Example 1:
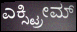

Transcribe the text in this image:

ಎಕ್ಸ್ಟ್ರೀಮ್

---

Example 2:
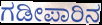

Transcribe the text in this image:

ಗಡೀಪಾರಿನ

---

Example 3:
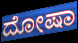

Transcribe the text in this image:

ದೋಷಾ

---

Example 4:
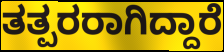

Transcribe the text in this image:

ತತ್ಪರರಾಗಿದ್ದಾರೆ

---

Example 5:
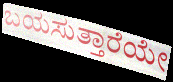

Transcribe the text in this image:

ಬಯಸುತ್ತಾರೆಯೇ